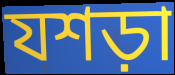
যশড়া